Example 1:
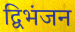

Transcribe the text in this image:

द्विभंजन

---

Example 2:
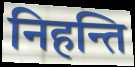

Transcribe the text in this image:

निहन्ति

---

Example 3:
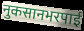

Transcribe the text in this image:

नुकसानभरपाई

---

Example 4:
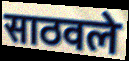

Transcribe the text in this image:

साठवले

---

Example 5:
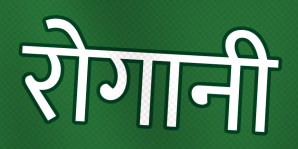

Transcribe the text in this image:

रोगानी